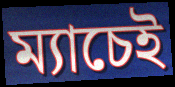
ম্যাচেই